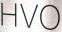
HVO